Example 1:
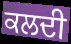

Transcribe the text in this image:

ਕਲਦੀ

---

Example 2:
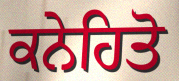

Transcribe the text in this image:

ਕਨੇਹਿਤੋ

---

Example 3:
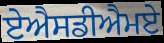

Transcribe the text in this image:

ਏਐਸਡੀਐਮਏ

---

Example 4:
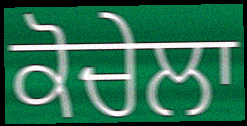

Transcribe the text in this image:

ਕੋਚੇਲਾ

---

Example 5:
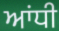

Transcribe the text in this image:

ਆਂਧੀ